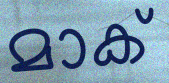
മാക്